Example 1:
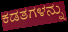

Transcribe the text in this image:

ಕಡತಗಳನ್ನು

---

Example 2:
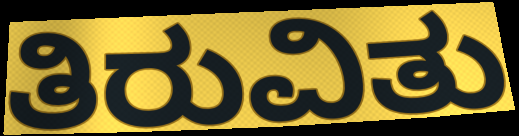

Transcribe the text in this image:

ತಿರುವಿತು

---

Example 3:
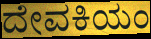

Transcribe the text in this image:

ದೇವಕಿಯಂ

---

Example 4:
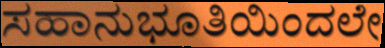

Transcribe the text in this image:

ಸಹಾನುಭೂತಿಯಿಂದಲೇ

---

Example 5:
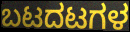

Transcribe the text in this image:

ಬಟದಟಗಳ